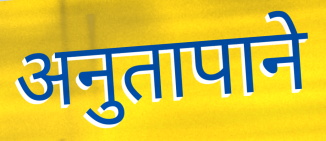
अनुतापाने